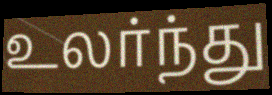
உலர்ந்து